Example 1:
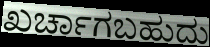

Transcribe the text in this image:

ಖರ್ಚಾಗಬಹುದು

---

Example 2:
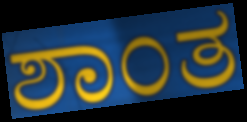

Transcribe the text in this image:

ಶಾಂತ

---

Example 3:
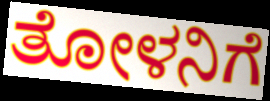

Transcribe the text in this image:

ತೋಳನಿಗೆ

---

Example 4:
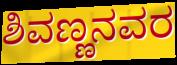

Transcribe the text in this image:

ಶಿವಣ್ಣನವರ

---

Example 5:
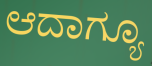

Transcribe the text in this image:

ಆದಾಗ್ಯೂ